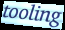
tooling